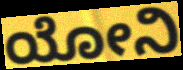
ಯೋನಿ